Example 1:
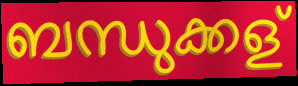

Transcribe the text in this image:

ബന്ധുക്കള്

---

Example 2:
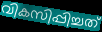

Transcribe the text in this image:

വികസിപ്പിച്ചത്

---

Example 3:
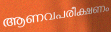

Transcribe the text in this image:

ആണവപരീക്ഷണം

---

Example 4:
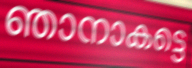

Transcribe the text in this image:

ഞാനാകട്ടെ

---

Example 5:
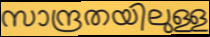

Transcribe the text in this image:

സാന്ദ്രതയിലുള്ള